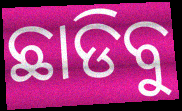
ଛାଡିବୁ